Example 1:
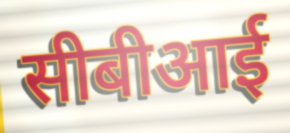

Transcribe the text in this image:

सीबीआई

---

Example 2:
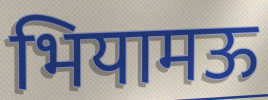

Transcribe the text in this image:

भियामऊ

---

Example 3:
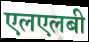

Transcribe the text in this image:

एलएलबी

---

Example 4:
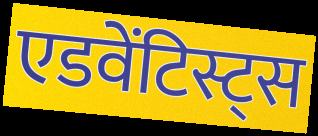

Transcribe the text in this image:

एडवेंटिस्ट्स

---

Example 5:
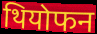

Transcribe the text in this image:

थियोफन